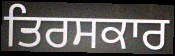
ਤਿਰਸਕਾਰ